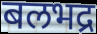
बलभद्र